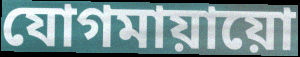
যোগমায়ায়ো